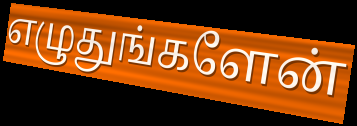
எழுதுங்களேன்